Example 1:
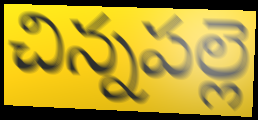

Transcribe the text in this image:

చిన్నపల్లె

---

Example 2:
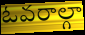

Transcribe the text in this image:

ఓవరాల్గా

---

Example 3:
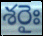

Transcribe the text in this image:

శరైః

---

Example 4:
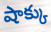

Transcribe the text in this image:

షాక్కు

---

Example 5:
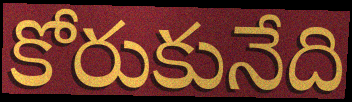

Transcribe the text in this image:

కోరుకునేది